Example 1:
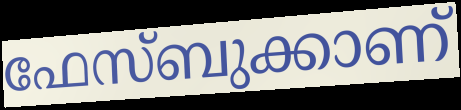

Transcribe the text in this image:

ഫേസ്ബുക്കാണ്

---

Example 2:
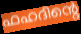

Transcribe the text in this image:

ഫഹദിന്റെ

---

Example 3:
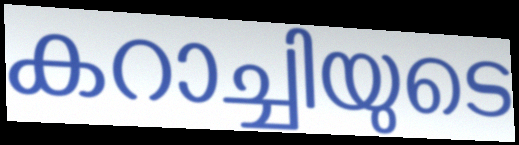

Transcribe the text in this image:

കറാച്ചിയുടെ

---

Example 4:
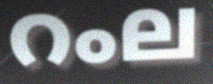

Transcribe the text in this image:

റംല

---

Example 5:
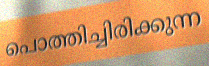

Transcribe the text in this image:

പൊത്തിച്ചിരിക്കുന്ന